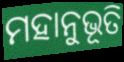
ମହାନୁଭୂତି